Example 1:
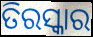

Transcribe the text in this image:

ତିରସ୍କାର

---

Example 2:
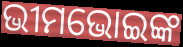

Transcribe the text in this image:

ଭୀମଭୋଇଙ୍କ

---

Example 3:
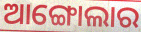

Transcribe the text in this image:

ଆଙ୍ଗୋଲାର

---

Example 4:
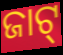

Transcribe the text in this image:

ଜାଟ୍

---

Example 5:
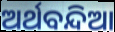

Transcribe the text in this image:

ଅର୍ଥବନ୍ଦିଆ